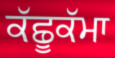
ਕੱਛੂਕੱਮਾ